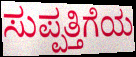
ಸುಪ್ಪತ್ತಿಗೆಯ